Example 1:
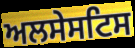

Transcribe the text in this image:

ਅਲਸੇਸਟਿਸ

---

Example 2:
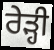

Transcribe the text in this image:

ਰੇੜ੍ਹੀ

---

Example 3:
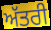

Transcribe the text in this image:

ਅੱਤਰੀ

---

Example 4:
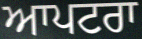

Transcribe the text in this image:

ਆਪਟਰਾ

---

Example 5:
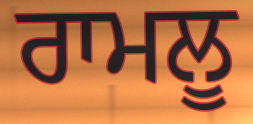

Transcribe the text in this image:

ਰਾਮਲੂ